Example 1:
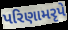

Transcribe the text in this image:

પરિણામરૃપે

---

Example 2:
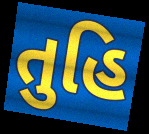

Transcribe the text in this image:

તુહિ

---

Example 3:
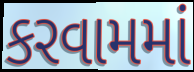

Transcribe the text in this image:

કરવામમાં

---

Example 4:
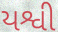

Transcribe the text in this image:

યશ્વી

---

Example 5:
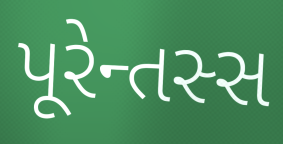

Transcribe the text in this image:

પૂરેન્તસ્સ